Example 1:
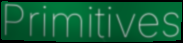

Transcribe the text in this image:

Primitives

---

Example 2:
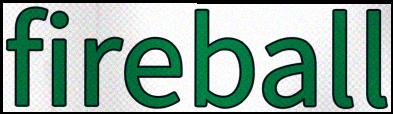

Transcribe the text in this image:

fireball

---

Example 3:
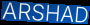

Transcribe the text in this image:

ARSHAD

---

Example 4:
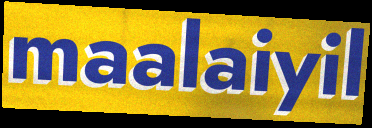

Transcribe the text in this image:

maalaiyil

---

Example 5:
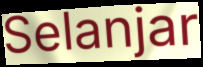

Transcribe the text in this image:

Selanjar